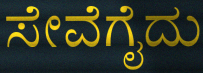
ಸೇವೆಗೈದು